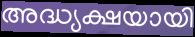
അദ്ധ്യക്ഷയായി